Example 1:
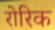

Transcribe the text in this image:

रोरिक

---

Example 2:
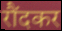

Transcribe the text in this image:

रौंदकर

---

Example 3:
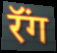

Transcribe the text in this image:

रॅंग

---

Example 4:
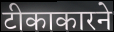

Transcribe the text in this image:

टीकाकारने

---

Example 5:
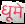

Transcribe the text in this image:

धूमे